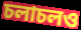
চলাচলও